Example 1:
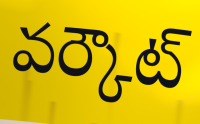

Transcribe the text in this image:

వర్కౌట్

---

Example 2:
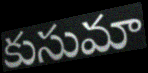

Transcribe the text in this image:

కుసుమా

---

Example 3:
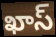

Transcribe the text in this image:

ఖాస్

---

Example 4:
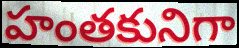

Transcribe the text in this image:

హంతకునిగా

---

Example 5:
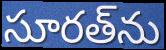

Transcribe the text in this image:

సూరత్‌ను